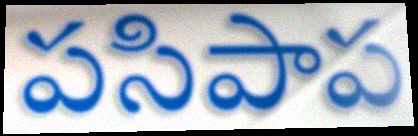
పసిపాప